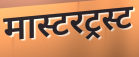
मास्टरट्रस्ट